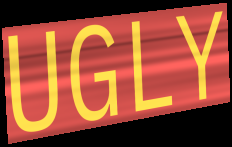
UGLY